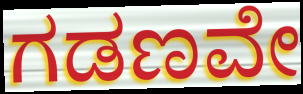
ಗಡಣವೇ